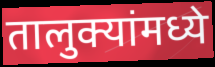
तालुक्यांमध्ये